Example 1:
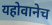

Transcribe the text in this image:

यहोवानेच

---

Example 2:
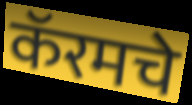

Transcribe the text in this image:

कॅरमचे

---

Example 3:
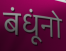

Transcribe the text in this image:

बंधूंनो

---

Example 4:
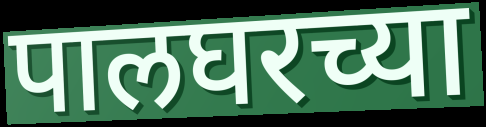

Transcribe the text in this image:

पालघरच्या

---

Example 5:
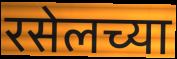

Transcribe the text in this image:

रसेलच्या